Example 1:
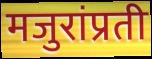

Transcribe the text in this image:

मजुरांप्रती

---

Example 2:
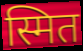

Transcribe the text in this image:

स्मित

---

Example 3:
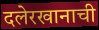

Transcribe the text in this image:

दलेरखानाची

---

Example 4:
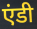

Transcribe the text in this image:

एंडी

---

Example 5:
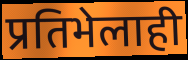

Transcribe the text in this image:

प्रतिभेलाही